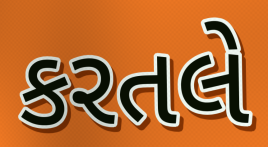
કરતલે